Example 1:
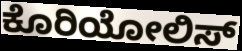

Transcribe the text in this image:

ಕೊರಿಯೋಲಿಸ್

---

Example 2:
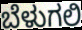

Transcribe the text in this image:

ಬೆಳುಗಲಿ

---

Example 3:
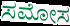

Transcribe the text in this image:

ಸಮೋಸ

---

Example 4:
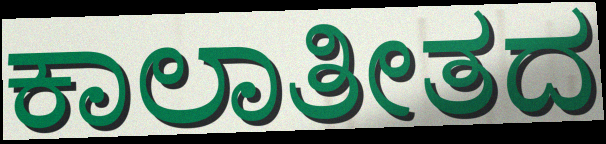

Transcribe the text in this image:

ಕಾಲಾತೀತದ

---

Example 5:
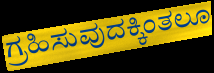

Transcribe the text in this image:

ಗ್ರಹಿಸುವುದಕ್ಕಿಂತಲೂ